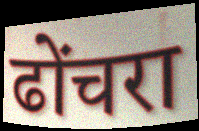
ढोंचरा